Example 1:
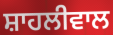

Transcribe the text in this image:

ਸ਼ਾਹਲੀਵਾਲ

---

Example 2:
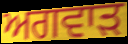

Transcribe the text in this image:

ਅਗਵਾੜ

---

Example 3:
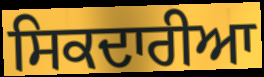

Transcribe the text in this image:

ਸਿਕਦਾਰੀਆ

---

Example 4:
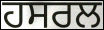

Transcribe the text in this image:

ਹਸਰਲ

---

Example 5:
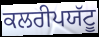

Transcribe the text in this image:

ਕਲਰੀਪਯੱਟੂ